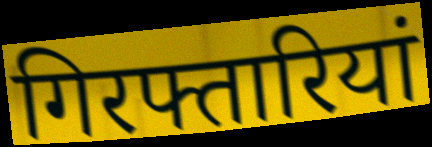
गिरफ्तारियां